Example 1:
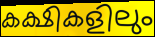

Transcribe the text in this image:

കക്ഷികളിലും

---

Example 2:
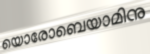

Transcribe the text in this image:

യൊരോബെയാമിനു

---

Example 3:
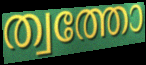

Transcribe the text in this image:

ത്വത്തോ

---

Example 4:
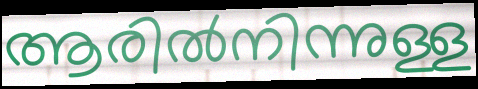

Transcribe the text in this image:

ആരിൽനിന്നുള്ള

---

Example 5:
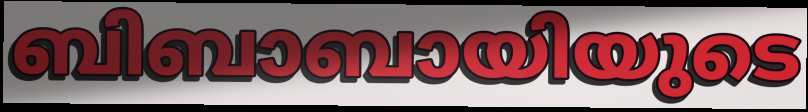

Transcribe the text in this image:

ബിബാബായിയുടെ